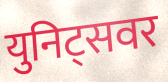
युनिट्सवर